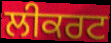
ਲੀਕਰਟ